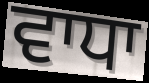
ਵਾਧਾ